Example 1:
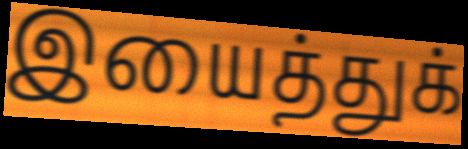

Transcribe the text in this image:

இயைத்துக்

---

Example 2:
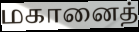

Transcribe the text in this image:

மகானைத்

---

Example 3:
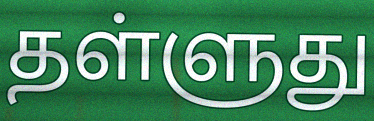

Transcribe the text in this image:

தள்ளுது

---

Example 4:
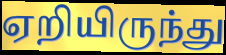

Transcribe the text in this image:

ஏறியிருந்து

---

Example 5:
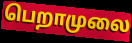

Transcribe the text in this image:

பெறாமுலை